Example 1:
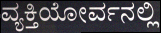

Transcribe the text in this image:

ವ್ಯಕ್ತಿಯೋರ್ವನಲ್ಲಿ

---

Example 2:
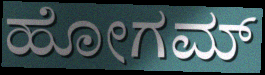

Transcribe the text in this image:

ಹೋಗಮ್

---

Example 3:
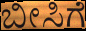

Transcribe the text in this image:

ಬೀಸಿಗೆ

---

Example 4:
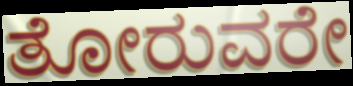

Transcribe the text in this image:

ತೋರುವರೇ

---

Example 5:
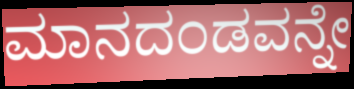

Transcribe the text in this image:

ಮಾನದಂಡವನ್ನೇ